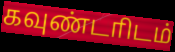
கவுண்டரிடம்